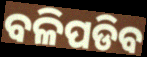
ବଳିପଡିବ